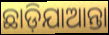
ଛାଡ଼ିଯାଆନ୍ତା